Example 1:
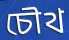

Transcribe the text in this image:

চৌথ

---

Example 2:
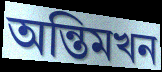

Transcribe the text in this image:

অন্তিমখন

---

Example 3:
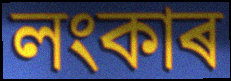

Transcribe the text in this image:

লংকাৰ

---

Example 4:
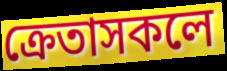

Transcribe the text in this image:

ক্ৰেতাসকলে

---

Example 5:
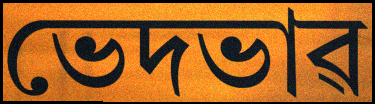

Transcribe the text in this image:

ভেদভাৱ